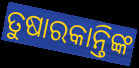
ତୁଷାରକାନ୍ତିଙ୍କ